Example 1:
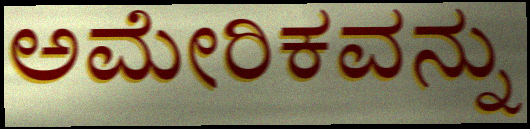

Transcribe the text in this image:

ಅಮೇರಿಕವನ್ನು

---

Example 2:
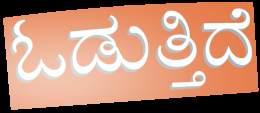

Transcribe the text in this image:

ಓಡುತ್ತಿದೆ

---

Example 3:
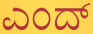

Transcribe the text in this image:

ಎಂದ್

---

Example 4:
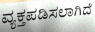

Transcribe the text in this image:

ವ್ಯಕ್ತಪಡಿಸಲಾಗಿದೆ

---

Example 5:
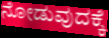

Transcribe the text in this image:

ನೋಡುವುದಕ್ಕೆ